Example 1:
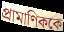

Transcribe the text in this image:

প্রামাণিককে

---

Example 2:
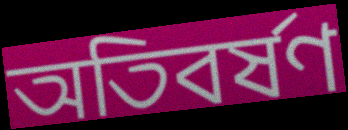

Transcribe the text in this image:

অতিবর্ষণ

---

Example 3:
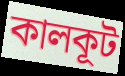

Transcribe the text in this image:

কালকূট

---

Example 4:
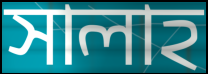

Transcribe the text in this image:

সালাহ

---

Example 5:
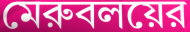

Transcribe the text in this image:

মেরুবলয়ের